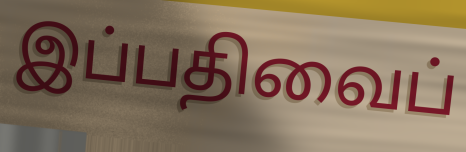
இப்பதிவைப்